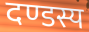
दण्डस्य